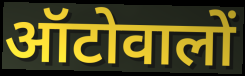
ऑटोवालों